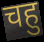
चहु